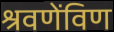
श्रवणेंविण